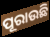
ପୂରାଉଛି